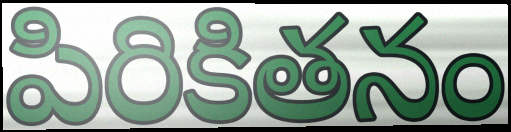
పిరికితనం